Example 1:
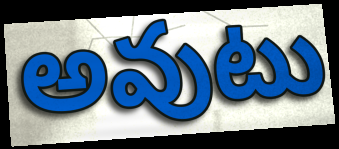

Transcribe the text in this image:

అవుటు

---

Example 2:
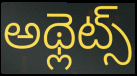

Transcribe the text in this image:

అథ్లెట్స్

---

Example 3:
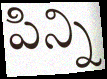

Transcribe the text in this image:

పిన్ని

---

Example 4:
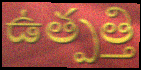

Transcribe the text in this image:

ఉత్పత్తి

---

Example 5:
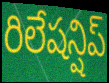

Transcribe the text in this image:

రిలేషన్షిప్